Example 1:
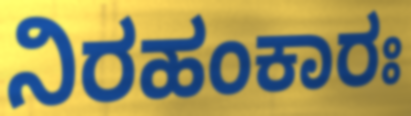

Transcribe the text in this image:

ನಿರಹಂಕಾರಃ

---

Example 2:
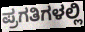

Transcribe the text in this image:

ಪ್ರಗತಿಗಳಲ್ಲಿ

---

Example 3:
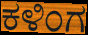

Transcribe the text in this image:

ಕಳಿಂಗ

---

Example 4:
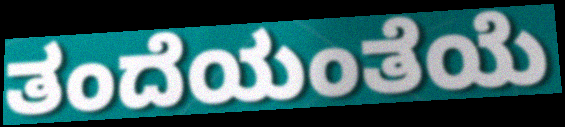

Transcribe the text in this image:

ತಂದೆಯಂತೆಯೆ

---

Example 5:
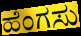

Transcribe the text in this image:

ಹೆಂಗಸು